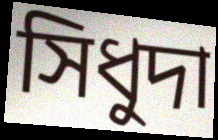
সিধুদা